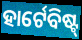
ହାର୍ଟେବିଷ୍ଟ୍